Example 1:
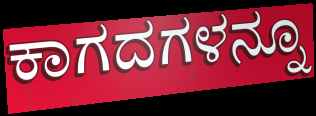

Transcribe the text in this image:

ಕಾಗದಗಳನ್ನೂ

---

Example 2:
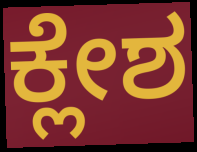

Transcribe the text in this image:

ಕ್ಲೇಶ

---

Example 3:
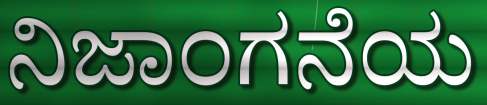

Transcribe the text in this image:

ನಿಜಾಂಗನೆಯ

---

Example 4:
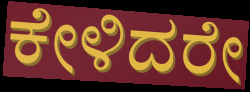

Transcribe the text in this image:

ಕೇಳಿದರೇ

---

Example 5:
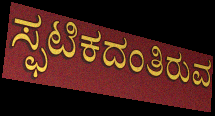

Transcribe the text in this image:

ಸ್ಫಟಿಕದಂತಿರುವ